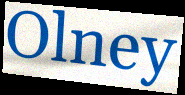
Olney